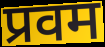
प्रवम